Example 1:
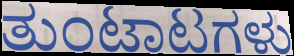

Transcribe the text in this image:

ತುಂಟಾಟಗಳು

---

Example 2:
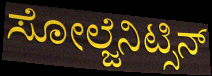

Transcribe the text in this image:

ಸೋಲ್ಜೆನಿಟ್ಸಿನ್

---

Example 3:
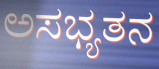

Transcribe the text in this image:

ಅಸಭ್ಯತನ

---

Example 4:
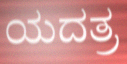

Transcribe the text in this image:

ಯದತ್ರ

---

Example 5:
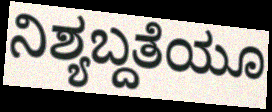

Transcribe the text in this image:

ನಿಶ್ಯಬ್ದತೆಯೂ